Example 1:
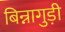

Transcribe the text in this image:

बिन्नागुड़ी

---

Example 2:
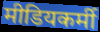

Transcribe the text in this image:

मीडियकर्मी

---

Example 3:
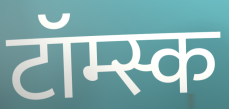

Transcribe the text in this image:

टॉम्स्क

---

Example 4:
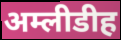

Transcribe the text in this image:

अम्लीडीह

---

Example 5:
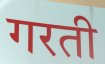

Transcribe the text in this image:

गरती